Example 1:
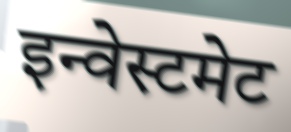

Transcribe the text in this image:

इन्वेस्टमेट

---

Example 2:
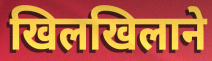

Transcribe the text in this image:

खिलखिलाने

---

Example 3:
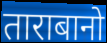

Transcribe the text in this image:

ताराबानो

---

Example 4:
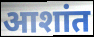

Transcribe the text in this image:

आशांत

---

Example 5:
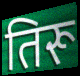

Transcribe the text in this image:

तिरू